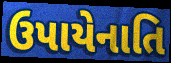
ઉપાયેનાતિ